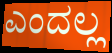
ಎಂದಲ್ಲ